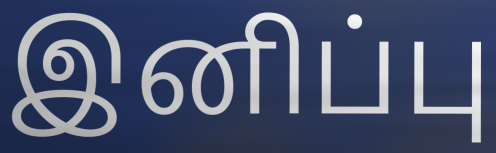
இனிப்பு